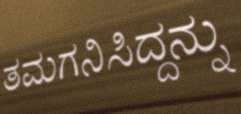
ತಮಗನಿಸಿದ್ದನ್ನು